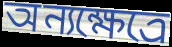
অন্যক্ষেত্রে